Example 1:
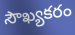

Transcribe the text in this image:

సౌఖ్యకరం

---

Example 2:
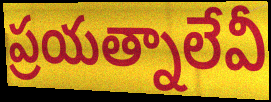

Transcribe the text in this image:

ప్రయత్నాలేవీ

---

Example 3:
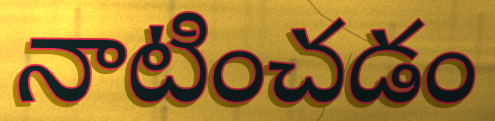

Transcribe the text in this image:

నాటించడం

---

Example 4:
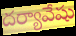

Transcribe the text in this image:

దర్యావేషు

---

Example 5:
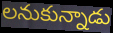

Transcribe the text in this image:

లనుకున్నాడు